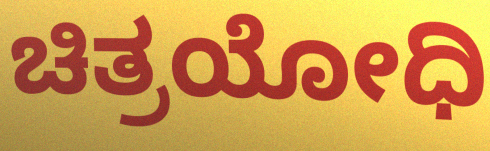
ಚಿತ್ರಯೋಧಿ